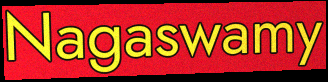
Nagaswamy